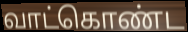
வாட்கொண்ட